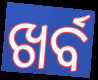
ଖର୍ବ